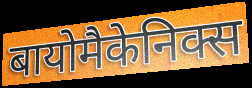
बायोमैकेनिक्स